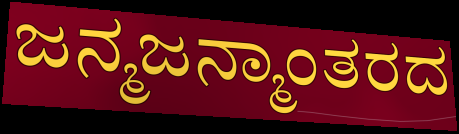
ಜನ್ಮಜನ್ಮಾಂತರದ